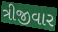
ત્રીજીવાર